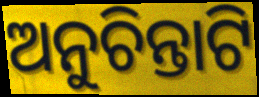
ଅନୁଚିନ୍ତାଟି